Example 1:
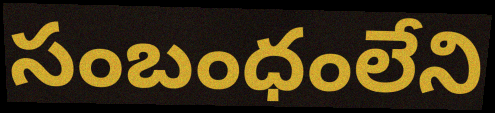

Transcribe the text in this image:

సంబంధంలేని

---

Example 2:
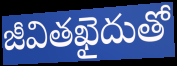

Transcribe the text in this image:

జీవితఖైదుతో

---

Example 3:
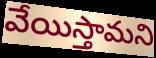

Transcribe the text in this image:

వేయిస్తామని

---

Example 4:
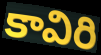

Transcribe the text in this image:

కావిరి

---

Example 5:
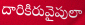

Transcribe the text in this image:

దారికిరువైపులా